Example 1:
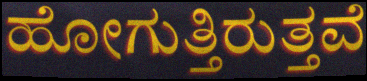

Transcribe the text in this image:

ಹೋಗುತ್ತಿರುತ್ತವೆ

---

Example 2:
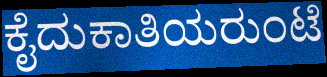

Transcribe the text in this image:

ಕೈದುಕಾತಿಯರುಂಟೆ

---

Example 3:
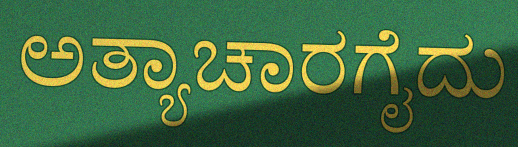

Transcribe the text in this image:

ಅತ್ಯಾಚಾರಗೈದು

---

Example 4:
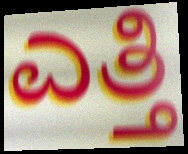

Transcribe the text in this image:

ಎತ್ತಿ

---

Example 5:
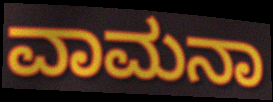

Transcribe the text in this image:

ವಾಮನಾ